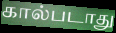
கால்படாது